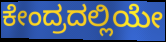
ಕೇಂದ್ರದಲ್ಲಿಯೇ